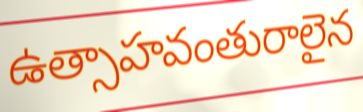
ఉత్సాహవంతురాలైన